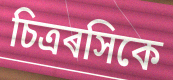
চিত্ৰৰসিকে